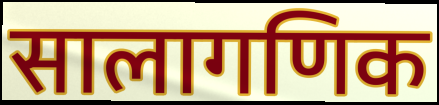
सालागणिक